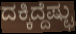
ದಕ್ಕಿದ್ದೆಷ್ಟು